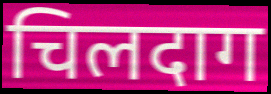
चिलदाग